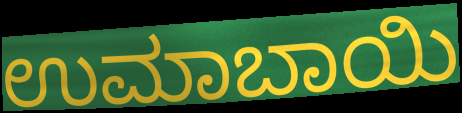
ಉಮಾಬಾಯಿ